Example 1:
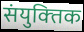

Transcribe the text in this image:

संयुक्‍तिक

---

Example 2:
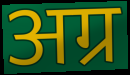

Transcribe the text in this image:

अग्र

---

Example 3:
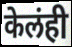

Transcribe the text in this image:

केलंही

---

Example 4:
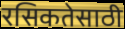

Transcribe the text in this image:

रसिकतेसाठी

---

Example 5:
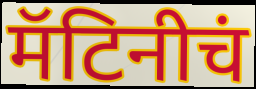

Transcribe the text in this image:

मॅटिनीचं